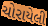
ચોરાયેલી